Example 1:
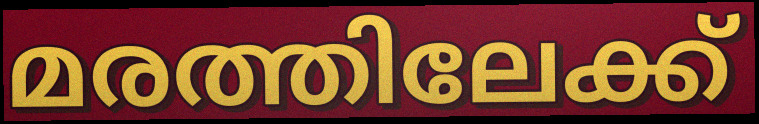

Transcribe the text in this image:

മരത്തിലേക്ക്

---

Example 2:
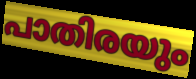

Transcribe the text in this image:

പാതിരയും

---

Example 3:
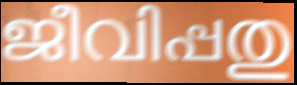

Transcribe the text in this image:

ജീവിപ്പതു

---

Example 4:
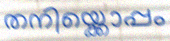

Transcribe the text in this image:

തനിയ്ക്കൊപ്പം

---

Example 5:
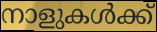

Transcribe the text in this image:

നാളുകൾക്ക്